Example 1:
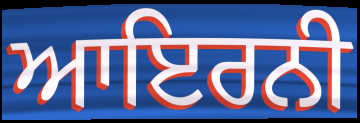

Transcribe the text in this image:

ਆਇਰਨੀ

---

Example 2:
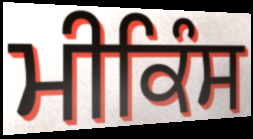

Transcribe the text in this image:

ਮੀਕਿੰਸ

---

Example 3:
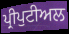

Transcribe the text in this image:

ਪ੍ਰੀਪੁਟੀਅਲ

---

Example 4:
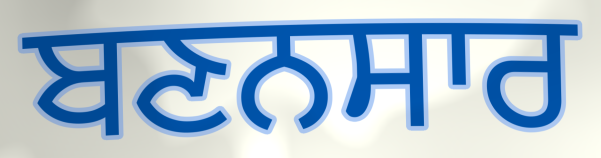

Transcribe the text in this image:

ਬਣਨਸਾਰ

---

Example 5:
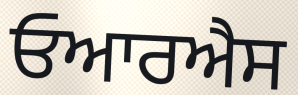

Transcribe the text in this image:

ਓਆਰਐਸ